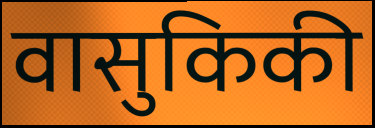
वासुकिकी